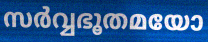
സർവ്വഭൂതമയോ